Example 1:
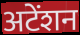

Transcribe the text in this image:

अटेंशन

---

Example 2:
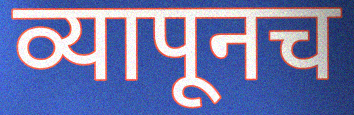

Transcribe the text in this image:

व्यापूनच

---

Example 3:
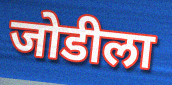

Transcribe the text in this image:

जोडीला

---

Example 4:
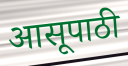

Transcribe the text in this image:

आसूपाठी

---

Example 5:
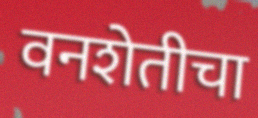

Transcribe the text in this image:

वनशेतीचा